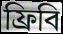
ফ্রিবি